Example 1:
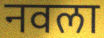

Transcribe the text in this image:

नवला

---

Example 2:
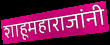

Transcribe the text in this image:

शाहूमहाराजांनी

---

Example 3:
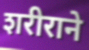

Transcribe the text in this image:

शरीराने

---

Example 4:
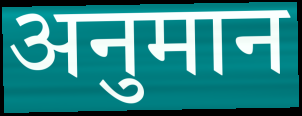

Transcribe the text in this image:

अनुमान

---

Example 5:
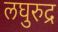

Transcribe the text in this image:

लघुरुद्र